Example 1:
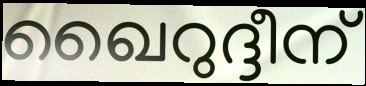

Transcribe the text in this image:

ഖൈറുദ്ദീന്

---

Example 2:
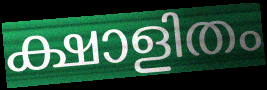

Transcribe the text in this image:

ക്ഷാളിതം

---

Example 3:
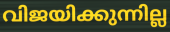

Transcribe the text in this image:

വിജയിക്കുന്നില്ല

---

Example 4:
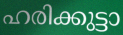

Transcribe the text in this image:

ഹരിക്കുട്ടാ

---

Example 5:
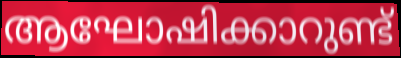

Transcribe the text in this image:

ആഘോഷിക്കാറുണ്ട്